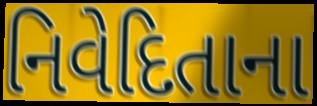
નિવેદિતાના